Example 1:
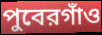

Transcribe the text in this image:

পুবেরগাঁও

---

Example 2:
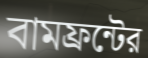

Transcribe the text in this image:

বামফ্রন্টের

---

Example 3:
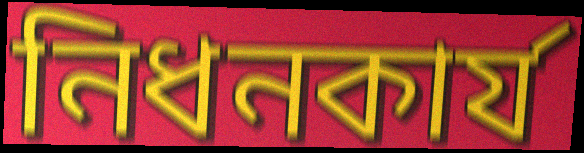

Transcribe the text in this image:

নিধনকার্য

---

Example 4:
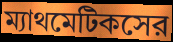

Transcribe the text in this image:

ম্যাথমেটিকসের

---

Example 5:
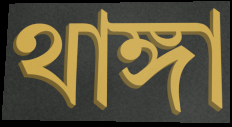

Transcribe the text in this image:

থাঙ্গা